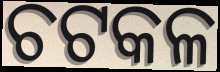
ଚଟକଳ